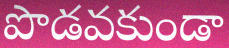
పొడవకుండా